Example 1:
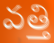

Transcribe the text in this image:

వత్తి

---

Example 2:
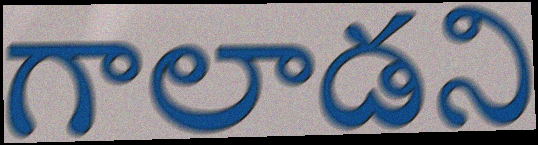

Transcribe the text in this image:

గాలాడని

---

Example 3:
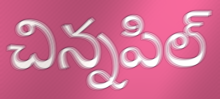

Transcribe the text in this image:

చిన్నపిల్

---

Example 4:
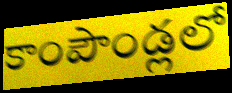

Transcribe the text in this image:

కాంపౌండ్లలో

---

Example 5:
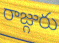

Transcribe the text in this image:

రాజ్గురు